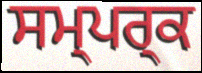
ਸਮ੍ਪਰ੍ਕ